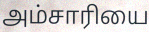
அம்சாரியை